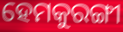
ହେମକୁରଙ୍ଗୀ